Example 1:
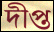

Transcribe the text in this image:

দীপ্ত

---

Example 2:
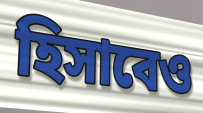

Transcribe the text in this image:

হিসাবেও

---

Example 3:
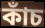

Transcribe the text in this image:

কাঁচ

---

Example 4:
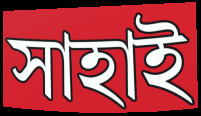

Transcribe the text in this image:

সাহাই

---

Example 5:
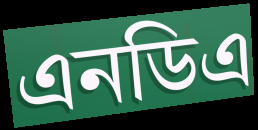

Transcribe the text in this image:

এনডিএ